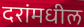
दरांमधील